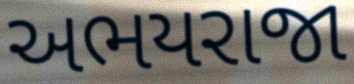
અભયરાજા